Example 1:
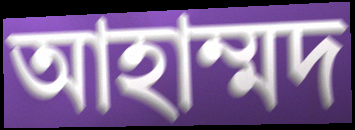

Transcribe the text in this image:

আহাম্মদ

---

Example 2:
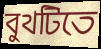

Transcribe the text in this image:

বুথটিতে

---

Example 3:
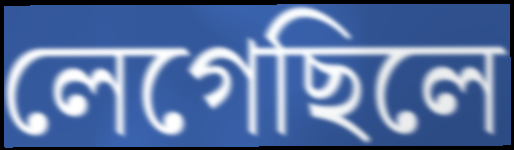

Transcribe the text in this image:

লেগেছিলে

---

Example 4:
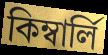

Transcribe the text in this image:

কিম্বার্লি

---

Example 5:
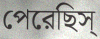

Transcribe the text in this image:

পেরেছিস্